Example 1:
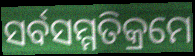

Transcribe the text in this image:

ସର୍ବସମ୍ମତିକ୍ରମେ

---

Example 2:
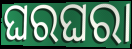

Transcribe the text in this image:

ଘରଘରା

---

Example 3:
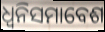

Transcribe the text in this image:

ଧ୍ୱନିସମାବେଶ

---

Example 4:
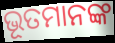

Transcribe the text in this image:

ଭୂତମାନଙ୍କ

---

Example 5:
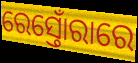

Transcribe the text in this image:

ରେସ୍ତୋଁରାରେ